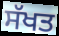
ਸੱਖਤ